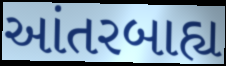
આંતરબાહ્ય